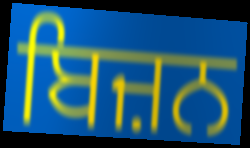
ਬਿਜ਼ਨ